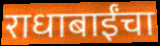
राधाबाईंचा